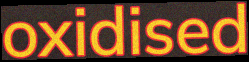
oxidised